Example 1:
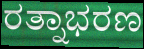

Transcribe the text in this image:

ರತ್ನಾಭರಣ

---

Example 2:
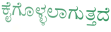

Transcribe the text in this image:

ಕೈಗೊಳ್ಳಲಾಗುತ್ತದೆ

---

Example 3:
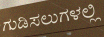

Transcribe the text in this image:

ಗುಡಿಸಲುಗಳಲ್ಲಿ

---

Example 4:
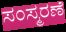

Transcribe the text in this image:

ಸಂಸ್ಮರಣೆ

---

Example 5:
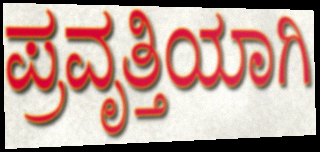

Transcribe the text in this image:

ಪ್ರವೃತ್ತಿಯಾಗಿ